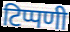
टिप्पणी